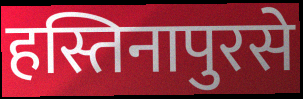
हस्तिनापुरसे